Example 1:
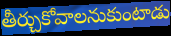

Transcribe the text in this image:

తీర్చుకోవాలనుకుంటాడు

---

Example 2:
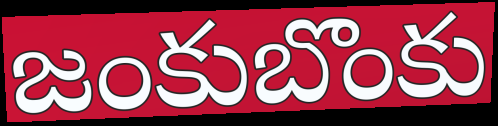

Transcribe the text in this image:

జంకుబొంకు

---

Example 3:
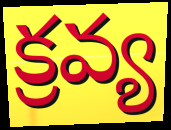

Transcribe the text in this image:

క్రవ్య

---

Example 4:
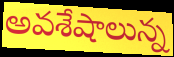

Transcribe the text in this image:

అవశేషాలున్న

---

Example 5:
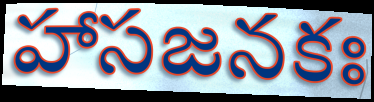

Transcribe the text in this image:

హాసజనకః